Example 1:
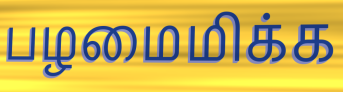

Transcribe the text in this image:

பழமைமிக்க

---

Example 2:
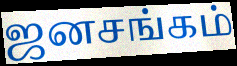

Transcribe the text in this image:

ஜனசங்கம்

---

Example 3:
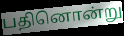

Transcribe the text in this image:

பதினொன்று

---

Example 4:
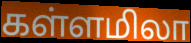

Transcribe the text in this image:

கள்ளமிலா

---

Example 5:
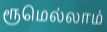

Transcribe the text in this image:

ரூமெல்லாம்